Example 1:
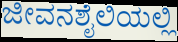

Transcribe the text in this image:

ಜೀವನಶೈಲಿಯಲ್ಲಿ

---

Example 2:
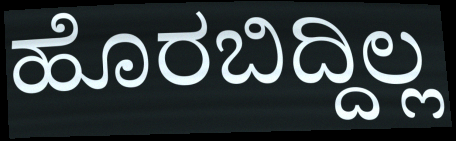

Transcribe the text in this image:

ಹೊರಬಿದ್ದಿಲ್ಲ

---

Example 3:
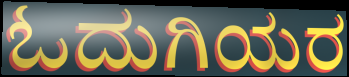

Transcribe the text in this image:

ಓದುಗಿಯರ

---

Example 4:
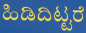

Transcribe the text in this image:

ಹಿಡಿದಿಟ್ಟರೆ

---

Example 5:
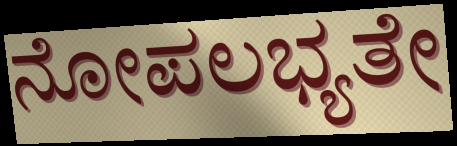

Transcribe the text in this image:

ನೋಪಲಭ್ಯತೇ